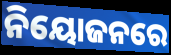
ନିୟୋଜନରେ